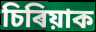
চিৰিয়াক